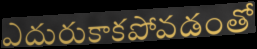
ఎదురుకాకపోవడంతో